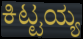
ಕಿಟ್ಟಯ್ಯ